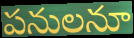
పనులనూ